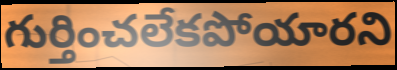
గుర్తించలేకపోయారని